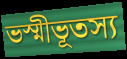
ভস্মীভূতস্য